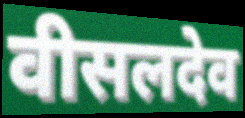
वीसलदेव